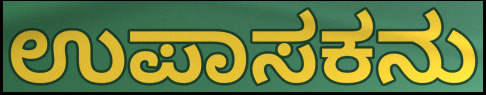
ಉಪಾಸಕನು